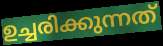
ഉച്ചരിക്കുന്നത്